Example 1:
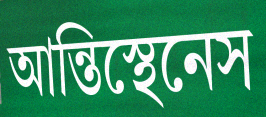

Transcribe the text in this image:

আন্তিস্থেনেস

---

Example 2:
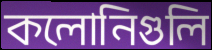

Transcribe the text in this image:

কলোনিগুলি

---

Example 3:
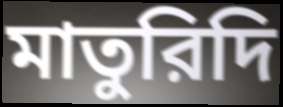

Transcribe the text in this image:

মাতুরিদি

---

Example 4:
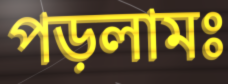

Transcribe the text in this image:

পড়লামঃ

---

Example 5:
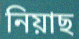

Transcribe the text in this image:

নিয়াছ